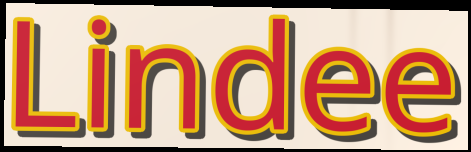
Lindee